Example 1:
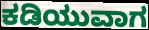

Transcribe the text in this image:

ಕಡಿಯುವಾಗ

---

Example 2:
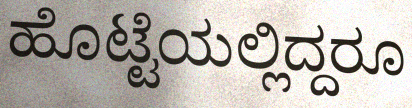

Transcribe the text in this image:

ಹೊಟ್ಟೆಯಲ್ಲಿದ್ದರೂ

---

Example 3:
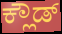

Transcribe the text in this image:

ಕ್ಲೌಡ್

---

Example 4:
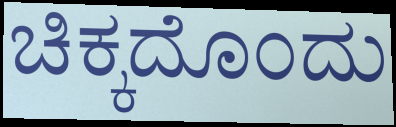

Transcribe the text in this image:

ಚಿಕ್ಕದೊಂದು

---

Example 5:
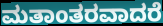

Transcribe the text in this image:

ಮತಾಂತರವಾದರೆ